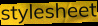
stylesheet